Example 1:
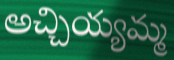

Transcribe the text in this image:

అచ్చియ్యమ్మ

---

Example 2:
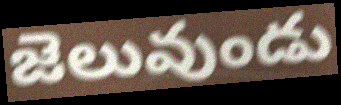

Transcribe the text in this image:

జెలువుండు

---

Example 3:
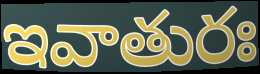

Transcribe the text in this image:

ఇవాతురః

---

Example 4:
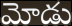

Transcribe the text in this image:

మోడు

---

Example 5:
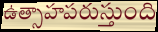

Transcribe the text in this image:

ఉత్సాహపరుస్తుంది